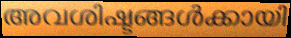
അവശിഷ്ടങ്ങൾക്കായി